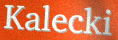
Kalecki